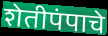
शेतीपंपाचे